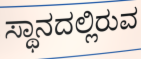
ಸ್ಥಾನದಲ್ಲಿರುವ